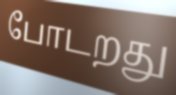
போடறது